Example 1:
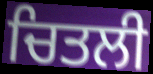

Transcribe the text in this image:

ਚਿਤਲੀ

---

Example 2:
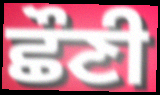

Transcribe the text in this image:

ਛੌਣੀ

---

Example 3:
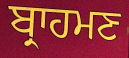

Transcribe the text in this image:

ਬ੍ਰਾਹਮਣ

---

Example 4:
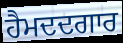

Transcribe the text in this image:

ਹੈਮਦਦਗਾਰ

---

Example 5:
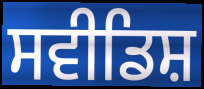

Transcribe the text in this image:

ਸਵੀਡਿਸ਼